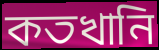
কতখানি